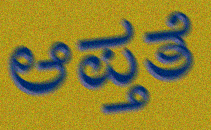
ಆಪ್ತತೆ